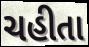
ચહીતા